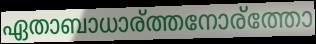
ഏതാബാധാര്ത്തനോര്ത്തോ